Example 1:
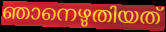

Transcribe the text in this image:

ഞാനെഴുതിയത്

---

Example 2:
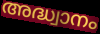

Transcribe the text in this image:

അദ്ധ്വാനം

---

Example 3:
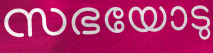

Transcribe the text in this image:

സഭയോടു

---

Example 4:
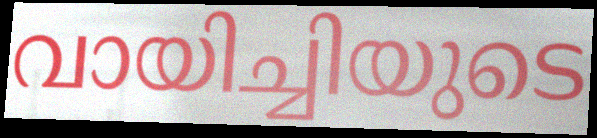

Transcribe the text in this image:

വായിച്ചിയുടെ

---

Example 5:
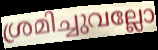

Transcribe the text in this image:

ശ്രമിച്ചുവല്ലോ